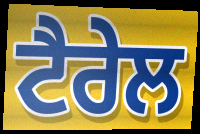
ਟੈਰੇਲ